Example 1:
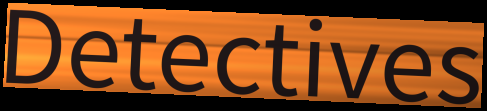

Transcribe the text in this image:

Detectives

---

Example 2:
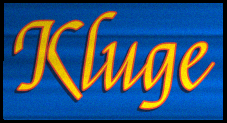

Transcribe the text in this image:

Kluge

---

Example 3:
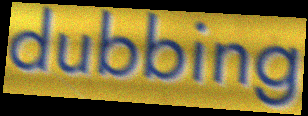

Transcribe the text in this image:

dubbing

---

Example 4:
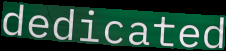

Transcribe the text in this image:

dedicated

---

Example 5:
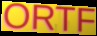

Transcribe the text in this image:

ORTF